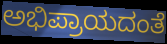
ಅಭಿಪ್ರಾಯದಂತೆ